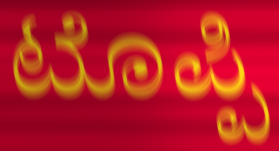
ಟೊಪ್ಪಿ